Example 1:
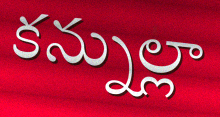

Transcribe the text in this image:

కన్నుల్లా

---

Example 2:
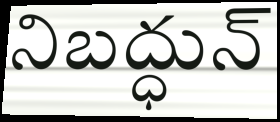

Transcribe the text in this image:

నిబద్ధున్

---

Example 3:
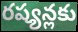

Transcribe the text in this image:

రష్యన్లకు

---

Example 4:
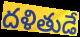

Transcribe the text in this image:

దళితుడే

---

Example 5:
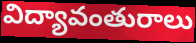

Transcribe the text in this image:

విద్యావంతురాలు